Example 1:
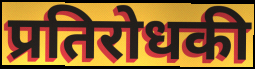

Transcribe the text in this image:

प्रतिरोधकी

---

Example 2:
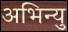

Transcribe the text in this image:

अभिन्यु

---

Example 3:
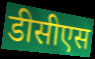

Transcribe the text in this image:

डीसीएस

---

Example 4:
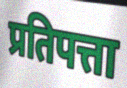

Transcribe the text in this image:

प्रतिपत्ता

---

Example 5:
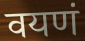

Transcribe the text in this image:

वयणं